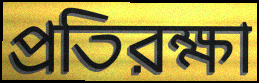
প্রতিরক্ষা